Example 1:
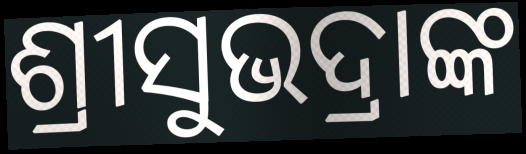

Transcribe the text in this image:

ଶ୍ରୀସୁଭଦ୍ରାଙ୍କ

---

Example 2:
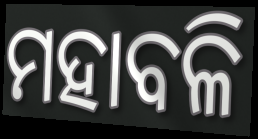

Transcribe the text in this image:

ମହାବଳି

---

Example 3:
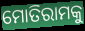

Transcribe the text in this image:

ମୋତିରାମକୁ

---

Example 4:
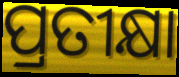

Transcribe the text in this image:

ପ୍ରତୀକ୍ଷା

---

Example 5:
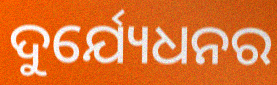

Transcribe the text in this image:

ଦୁର୍ଯ୍ୟେଧନର